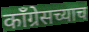
कॉंग्रेसच्याच